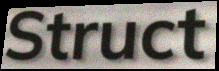
Struct